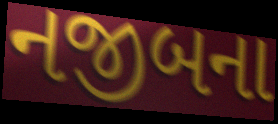
નજીબના